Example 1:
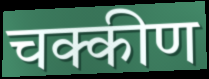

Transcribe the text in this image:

चक्कीण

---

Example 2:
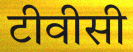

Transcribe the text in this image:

टीवीसी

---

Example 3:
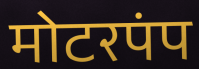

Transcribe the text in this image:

मोटरपंप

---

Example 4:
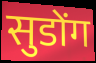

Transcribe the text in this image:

सुडोंग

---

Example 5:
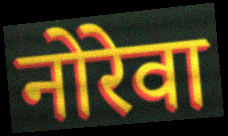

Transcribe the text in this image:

नोरेवा